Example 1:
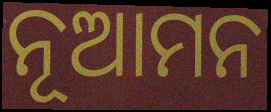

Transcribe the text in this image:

ନୂଆମନ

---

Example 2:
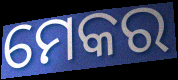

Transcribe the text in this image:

ମେକର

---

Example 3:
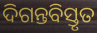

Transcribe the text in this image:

ଦିଗନ୍ତବିସ୍ତୃତ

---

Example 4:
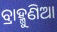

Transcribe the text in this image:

ବ୍ରାହ୍ମୁଣିଆ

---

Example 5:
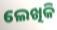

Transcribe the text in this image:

ଲେଖିକି